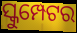
ସ୍କୁମ୍ପେଟର